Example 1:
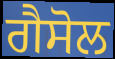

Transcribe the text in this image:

ਗੈਸੋਲ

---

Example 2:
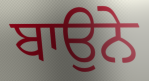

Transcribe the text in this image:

ਬਾਉਨੇ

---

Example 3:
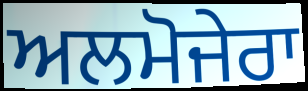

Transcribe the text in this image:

ਅਲਮੋਜੇਰਾ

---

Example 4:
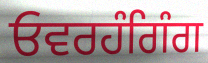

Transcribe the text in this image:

ਓਵਰਹੰਗਿੰਗ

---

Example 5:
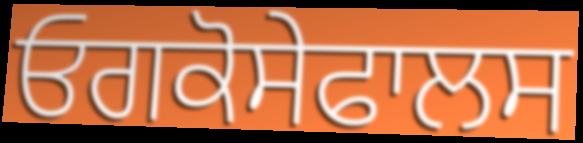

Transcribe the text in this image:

ਓਗਕੋਸੇਫਾਲਸ